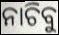
ନାଚିବୁ